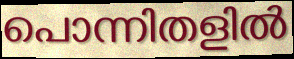
പൊന്നിതളിൽ